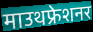
माउथफ्रेशनर